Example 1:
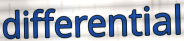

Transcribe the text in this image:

differential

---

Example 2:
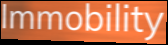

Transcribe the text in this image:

Immobility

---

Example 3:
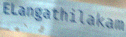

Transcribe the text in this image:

ELangathilakam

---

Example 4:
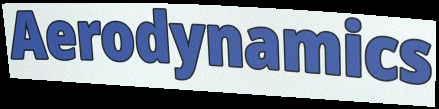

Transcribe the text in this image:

Aerodynamics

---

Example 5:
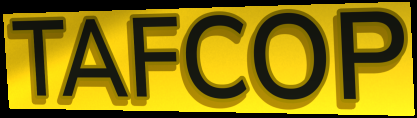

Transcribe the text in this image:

TAFCOP